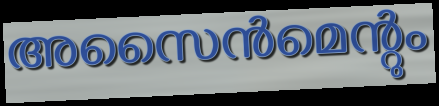
അസൈൻമെന്റും